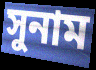
সুনাম